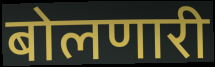
बोलणारी